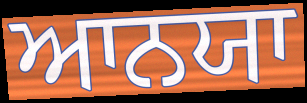
ਆਨਯਾ